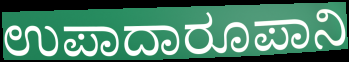
ಉಪಾದಾರೂಪಾನಿ